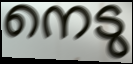
നെടു